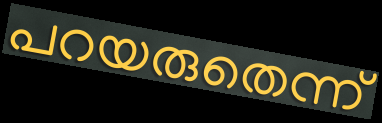
പറയരുതെന്ന്